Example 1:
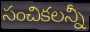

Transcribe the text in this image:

సంచికలన్నీ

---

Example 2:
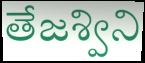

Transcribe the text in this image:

తేజశ్విని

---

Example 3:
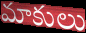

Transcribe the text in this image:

మాకులు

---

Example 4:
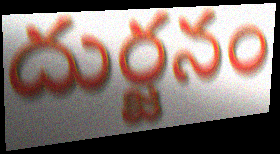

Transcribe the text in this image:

దుర్జనం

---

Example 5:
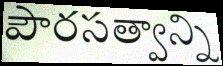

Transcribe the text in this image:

పౌరసత్వాన్ని